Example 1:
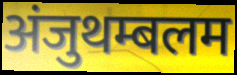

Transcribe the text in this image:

अंजुथम्बलम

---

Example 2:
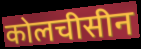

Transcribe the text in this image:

कोलचीसीन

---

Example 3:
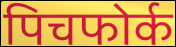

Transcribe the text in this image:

पिचफोर्क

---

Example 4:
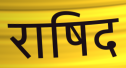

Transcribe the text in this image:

राषिद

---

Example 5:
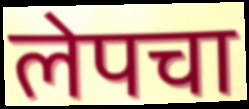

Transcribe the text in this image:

लेपचा